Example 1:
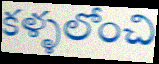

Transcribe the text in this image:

కళ్ళలోంచి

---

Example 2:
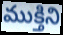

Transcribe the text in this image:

ముక్తిని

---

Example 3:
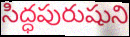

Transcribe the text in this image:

సిద్ధపురుషుని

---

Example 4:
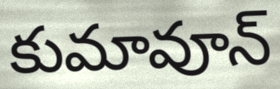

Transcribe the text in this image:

కుమావూన్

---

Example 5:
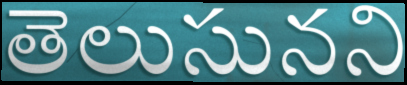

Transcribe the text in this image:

తెలుసునని